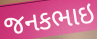
જનકભાઇ